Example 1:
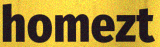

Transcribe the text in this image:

homezt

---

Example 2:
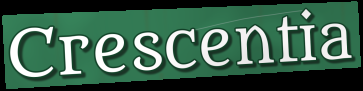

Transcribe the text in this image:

Crescentia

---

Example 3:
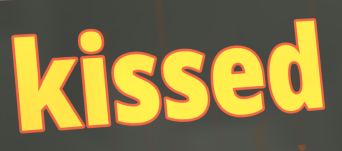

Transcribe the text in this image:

kissed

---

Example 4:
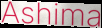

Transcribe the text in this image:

Ashima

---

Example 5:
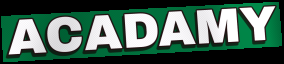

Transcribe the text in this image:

ACADAMY